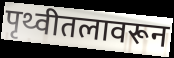
पृथ्वीतलावरून